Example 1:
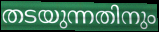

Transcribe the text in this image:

തടയുന്നതിനും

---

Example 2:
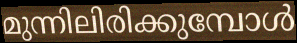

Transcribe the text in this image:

മുന്നിലിരിക്കുമ്പോൾ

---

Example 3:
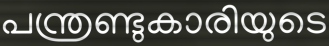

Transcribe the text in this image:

പന്ത്രണ്ടുകാരിയുടെ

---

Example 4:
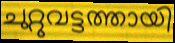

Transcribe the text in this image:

ചുറ്റുവട്ടത്തായി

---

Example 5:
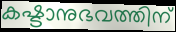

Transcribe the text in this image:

കഷ്ടാനുഭവത്തിന്